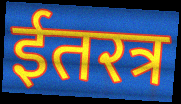
ईतरत्र